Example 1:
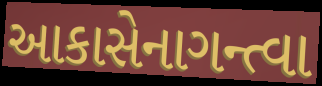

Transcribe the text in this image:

આકાસેનાગન્ત્વા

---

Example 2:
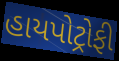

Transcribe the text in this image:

હાયપોટ્રોફી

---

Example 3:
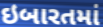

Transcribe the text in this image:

ઇબારતમાં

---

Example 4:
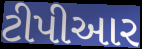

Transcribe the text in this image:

ટીપીઆર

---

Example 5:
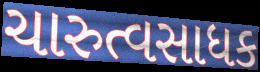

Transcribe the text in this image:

ચારુત્વસાધક